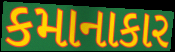
કમાનાકાર